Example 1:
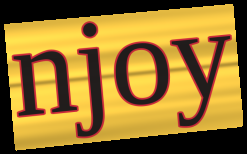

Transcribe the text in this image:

njoy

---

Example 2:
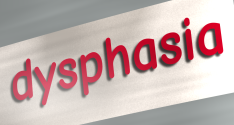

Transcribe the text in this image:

dysphasia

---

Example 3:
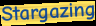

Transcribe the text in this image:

Stargazing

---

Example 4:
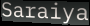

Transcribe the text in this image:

Saraiya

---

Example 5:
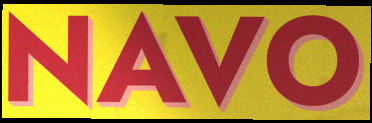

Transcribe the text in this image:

NAVO